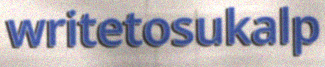
writetosukalp